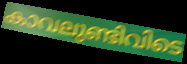
കാവലുണ്ടിവിടെ